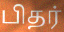
பிதர்